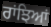
ਰਾਂਝਿਆਂ